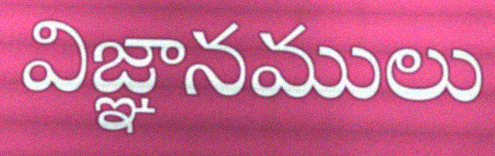
విజ్ఞానములు